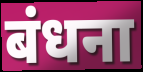
बंधना